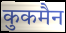
कुकमैन